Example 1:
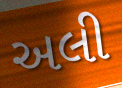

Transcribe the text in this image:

અલી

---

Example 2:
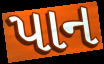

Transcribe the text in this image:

પાન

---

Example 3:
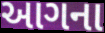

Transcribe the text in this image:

આગના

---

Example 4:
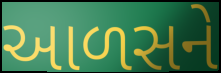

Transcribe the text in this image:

આળસને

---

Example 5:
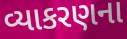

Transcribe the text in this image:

વ્યાકરણના